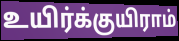
உயிர்க்குயிராம்